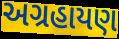
અગ્રહાયણ